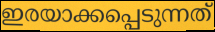
ഇരയാക്കപ്പെടുന്നത്